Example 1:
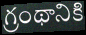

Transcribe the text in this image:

గ్రంథానికి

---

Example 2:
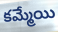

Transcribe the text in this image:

కమ్మేయి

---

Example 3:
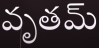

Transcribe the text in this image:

వృతమ్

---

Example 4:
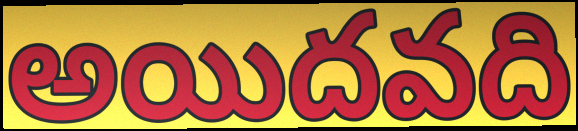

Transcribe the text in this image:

అయిదవది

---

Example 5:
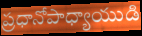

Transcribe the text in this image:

ప్రధానోపాధ్యాయుడి